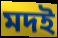
মদই